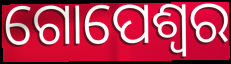
ଗୋପେଶ୍ଵର